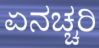
ಏನಚ್ಚರಿ